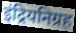
इंद्रियनिग्रह